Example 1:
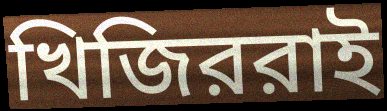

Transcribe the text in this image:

খিজিররাই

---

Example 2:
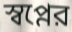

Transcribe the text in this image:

স্বপ্নের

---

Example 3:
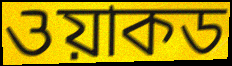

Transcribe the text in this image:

ওয়াকড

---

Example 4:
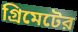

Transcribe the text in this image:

গ্রিমেটের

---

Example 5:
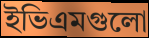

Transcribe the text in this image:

ইভিএমগুলো